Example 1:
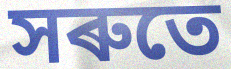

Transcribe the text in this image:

সৰুতে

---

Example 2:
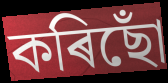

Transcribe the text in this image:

কৰিছোঁ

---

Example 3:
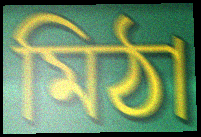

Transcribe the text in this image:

মিঠা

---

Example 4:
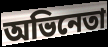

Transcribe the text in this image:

অভিনেতা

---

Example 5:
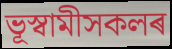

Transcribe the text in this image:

ভূস্বামীসকলৰ